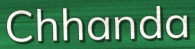
Chhanda